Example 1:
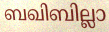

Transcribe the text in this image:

ബഖിബില്ലാ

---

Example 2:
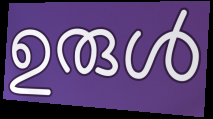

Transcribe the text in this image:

ഉരുൾ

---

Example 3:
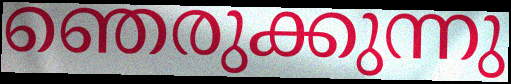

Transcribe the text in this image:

ഞെരുക്കുന്നു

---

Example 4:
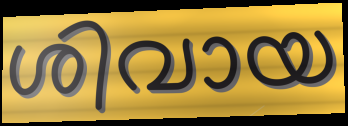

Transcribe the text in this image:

ശിവായ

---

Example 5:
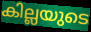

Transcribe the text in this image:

കില്ലയുടെ